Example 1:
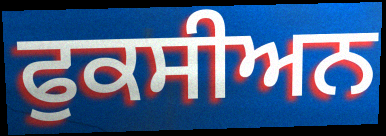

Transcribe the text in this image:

ਫੁਕਸੀਅਨ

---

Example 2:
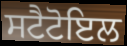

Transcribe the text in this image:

ਸਟੈਟੋਇਲ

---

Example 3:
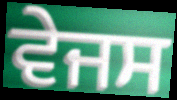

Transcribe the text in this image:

ਵੇਜਸ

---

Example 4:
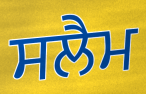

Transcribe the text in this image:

ਸਲੈਮ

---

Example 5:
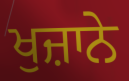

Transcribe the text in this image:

ਖੁਜ਼ਾਨੇ